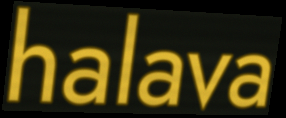
halava